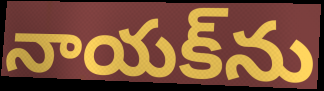
నాయక్‌ను